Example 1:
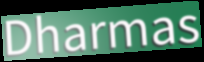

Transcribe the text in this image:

Dharmas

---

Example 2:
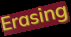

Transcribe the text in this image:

Erasing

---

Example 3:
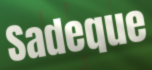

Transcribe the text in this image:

Sadeque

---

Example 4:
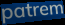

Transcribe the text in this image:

patrem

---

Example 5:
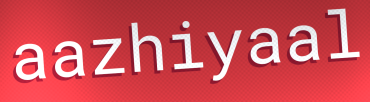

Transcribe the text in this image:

aazhiyaal